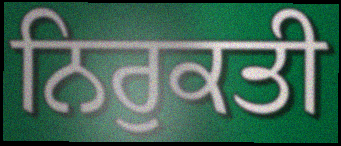
ਨਿਰੁਕਤੀ